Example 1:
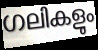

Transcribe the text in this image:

ഗലികളും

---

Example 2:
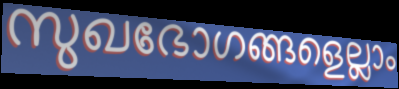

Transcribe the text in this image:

സുഖഭോഗങ്ങളെല്ലാം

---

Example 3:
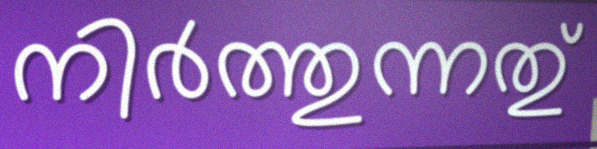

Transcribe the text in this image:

നിർത്തുന്നതു്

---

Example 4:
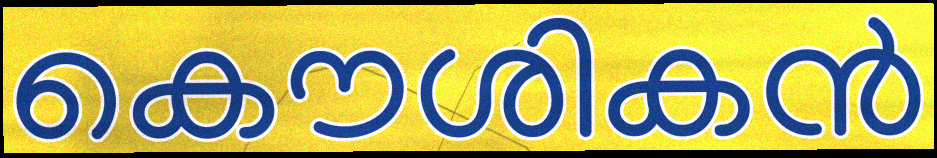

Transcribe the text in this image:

കൌശികൻ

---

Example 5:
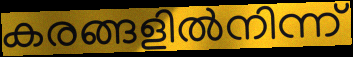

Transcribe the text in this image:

കരങ്ങളിൽനിന്ന്